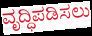
ವೃದ್ಧಿಪಡಿಸಲು